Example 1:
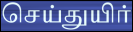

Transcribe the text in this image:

செய்துயிர்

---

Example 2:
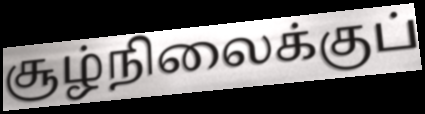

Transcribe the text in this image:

சூழ்நிலைக்குப்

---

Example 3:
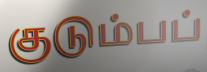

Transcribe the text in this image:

குடும்பப்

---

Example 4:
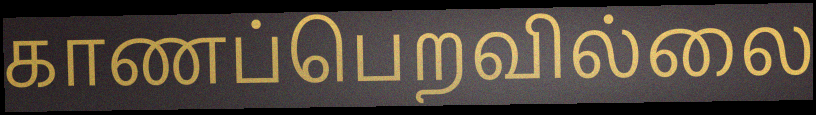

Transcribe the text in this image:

காணப்பெறவில்லை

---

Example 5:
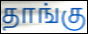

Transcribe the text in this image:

தாங்கு